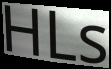
HLs